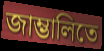
জাম্ভালিতে